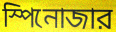
স্পিনোজার